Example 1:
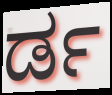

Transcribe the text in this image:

ರ್ಡ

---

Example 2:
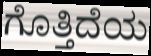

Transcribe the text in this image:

ಗೊತ್ತಿದೆಯ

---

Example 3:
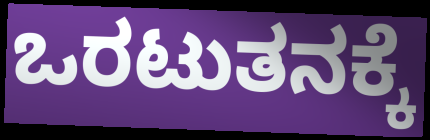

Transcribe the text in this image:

ಒರಟುತನಕ್ಕೆ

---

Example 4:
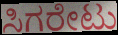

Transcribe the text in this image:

ಸಿಗರೇಟು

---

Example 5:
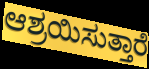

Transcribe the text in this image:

ಆಶ್ರಯಿಸುತ್ತಾರೆ